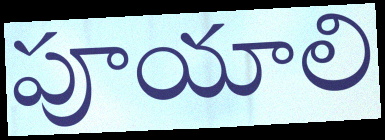
పూయాలి